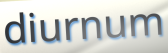
diurnum